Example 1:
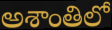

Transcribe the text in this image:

అశాంతిలో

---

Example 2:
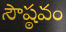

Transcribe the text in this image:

సౌష్ఠవం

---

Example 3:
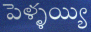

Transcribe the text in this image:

పెళ్ళయ్యి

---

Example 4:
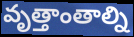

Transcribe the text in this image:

వృత్తాంతాల్ని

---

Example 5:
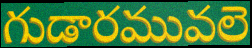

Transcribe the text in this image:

గుడారమువలె